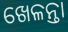
ଖେଳନ୍ତା